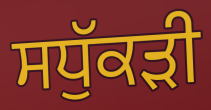
ਸਧੁੱਕੜੀ